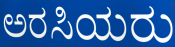
ಅರಸಿಯರು